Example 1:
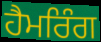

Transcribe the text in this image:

ਹੈਮਰਿੰਗ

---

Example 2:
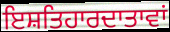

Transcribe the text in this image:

ਇਸ਼ਤਿਹਾਰਦਾਤਾਵਾਂ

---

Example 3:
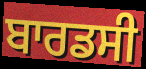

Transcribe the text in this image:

ਬਾਰਡਸੀ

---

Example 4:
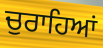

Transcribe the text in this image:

ਚੁਰਾਹਿਆਂ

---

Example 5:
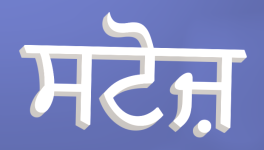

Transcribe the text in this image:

ਸਟੋਜ਼